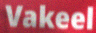
Vakeel